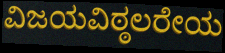
ವಿಜಯವಿಠ್ಠಲರೇಯ